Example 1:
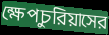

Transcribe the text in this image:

ক্ষেপচুরিয়াসের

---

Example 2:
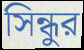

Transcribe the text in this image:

সিন্ধুর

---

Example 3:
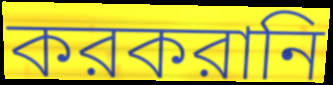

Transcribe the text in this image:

করকরানি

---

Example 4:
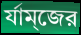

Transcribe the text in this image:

র্যাম্জের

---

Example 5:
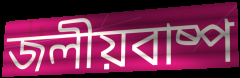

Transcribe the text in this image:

জলীয়বাষ্প